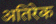
अतिरेक